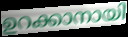
ഉറക്കാനായി